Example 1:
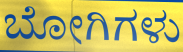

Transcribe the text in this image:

ಬೋಗಿಗಳು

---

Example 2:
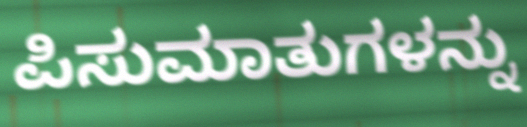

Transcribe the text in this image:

ಪಿಸುಮಾತುಗಳನ್ನು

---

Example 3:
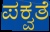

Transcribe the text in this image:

ಪಕ್ವತೆ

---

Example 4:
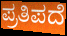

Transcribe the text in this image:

ಪ್ರತಿಪದೆ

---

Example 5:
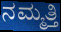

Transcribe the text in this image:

ನಮ್ಮತ್ತಿ